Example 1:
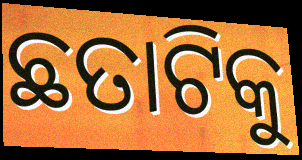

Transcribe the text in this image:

ଛତାଟିକୁ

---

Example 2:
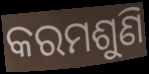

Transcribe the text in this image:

କରମଶୁଣି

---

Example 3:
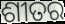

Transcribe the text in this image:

ଶୀତର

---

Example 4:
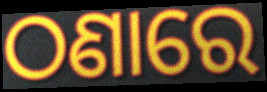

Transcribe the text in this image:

ଠଣାରେ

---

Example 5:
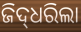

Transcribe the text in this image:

ଜିଦ୍‌ଧରିଲା